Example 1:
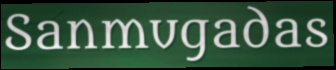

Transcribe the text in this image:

Sanmugadas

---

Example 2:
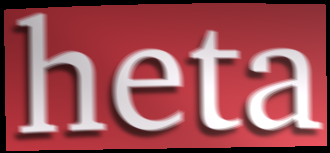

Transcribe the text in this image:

heta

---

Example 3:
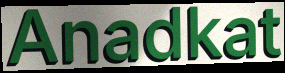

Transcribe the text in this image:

Anadkat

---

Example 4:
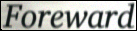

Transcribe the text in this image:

Foreward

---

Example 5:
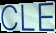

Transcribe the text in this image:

CLE